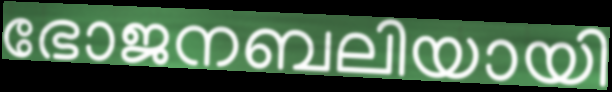
ഭോജനബലിയായി